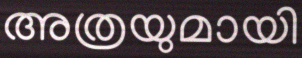
അത്രയുമായി